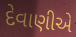
દેવાણીએ